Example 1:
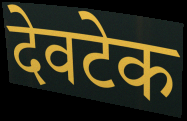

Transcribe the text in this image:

देवटेक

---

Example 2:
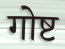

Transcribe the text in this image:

गोष्ट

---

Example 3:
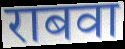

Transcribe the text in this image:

राबवा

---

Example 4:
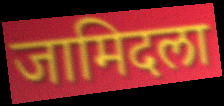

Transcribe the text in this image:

जामिदला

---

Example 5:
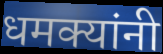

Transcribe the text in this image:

धमक्यांनी